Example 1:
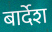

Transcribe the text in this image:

बार्देश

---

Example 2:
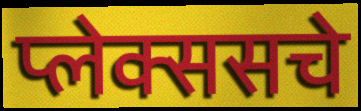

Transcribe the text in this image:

प्लेक्ससचे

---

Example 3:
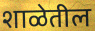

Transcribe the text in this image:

शाळेतील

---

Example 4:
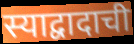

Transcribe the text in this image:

स्याद्वादाची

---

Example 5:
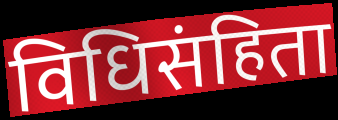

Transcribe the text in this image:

विधिसंहिता